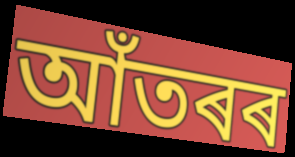
আঁতৰৰ